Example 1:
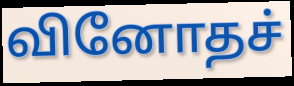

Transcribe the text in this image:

வினோதச்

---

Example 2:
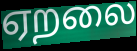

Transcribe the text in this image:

ஏறலை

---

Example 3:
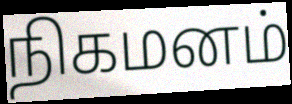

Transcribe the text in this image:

நிகமனம்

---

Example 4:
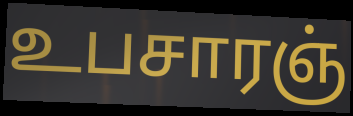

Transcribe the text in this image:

உபசாரஞ்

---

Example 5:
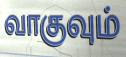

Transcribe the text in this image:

வாகுவும்